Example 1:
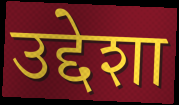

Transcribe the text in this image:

उद्देशा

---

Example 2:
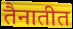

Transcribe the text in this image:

तैनातीत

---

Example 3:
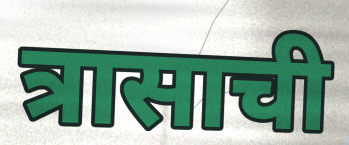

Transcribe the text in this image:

त्रासाची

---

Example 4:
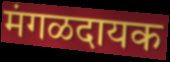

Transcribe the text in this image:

मंगळदायक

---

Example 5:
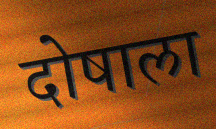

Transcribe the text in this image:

दोषाला